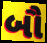
બૌ